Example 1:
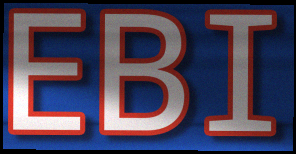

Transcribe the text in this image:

EBI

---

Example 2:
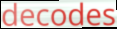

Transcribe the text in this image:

decodes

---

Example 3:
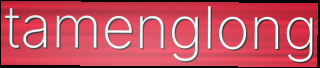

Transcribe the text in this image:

tamenglong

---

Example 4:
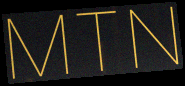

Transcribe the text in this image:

MTN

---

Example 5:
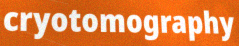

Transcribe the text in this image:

cryotomography